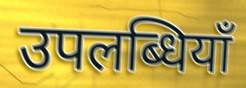
उपलब्धियाँ